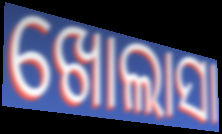
ଖୋଲାସା